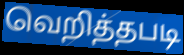
வெறித்தபடி